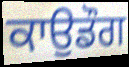
ਕਾਉਡੌਗ